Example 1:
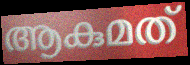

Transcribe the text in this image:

ആകുമത്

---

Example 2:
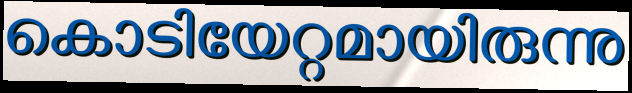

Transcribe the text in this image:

കൊടിയേറ്റമായിരുന്നു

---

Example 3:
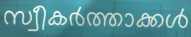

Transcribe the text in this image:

സ്വീകർത്താക്കൾ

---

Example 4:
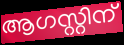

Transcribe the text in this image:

ആഗസ്റ്റിന്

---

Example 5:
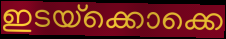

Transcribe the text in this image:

ഇടയ്‌ക്കൊക്കെ